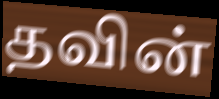
தவின்